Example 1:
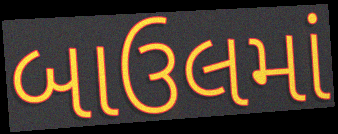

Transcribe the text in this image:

બાઉલમાં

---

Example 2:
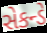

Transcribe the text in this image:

સેકન્ડે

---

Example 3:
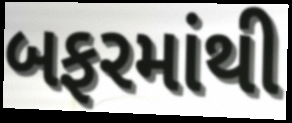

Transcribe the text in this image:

બફરમાંથી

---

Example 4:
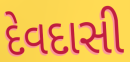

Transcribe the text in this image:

દેવદાસી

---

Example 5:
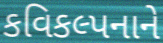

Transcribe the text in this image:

કવિકલ્પનાને